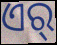
ଏର୍